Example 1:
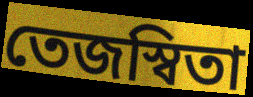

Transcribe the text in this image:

তেজস্বিতা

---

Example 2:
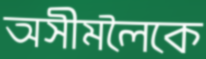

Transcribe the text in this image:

অসীমলৈকে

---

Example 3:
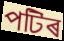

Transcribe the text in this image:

পটিৰ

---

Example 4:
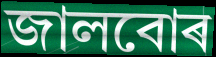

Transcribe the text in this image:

জালবোৰ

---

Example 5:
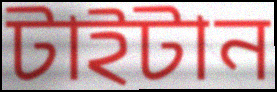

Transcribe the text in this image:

টাইটান